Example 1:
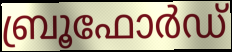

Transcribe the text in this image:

ബ്രൂഫോർഡ്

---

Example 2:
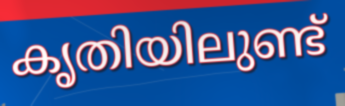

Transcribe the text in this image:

കൃതിയിലുണ്ട്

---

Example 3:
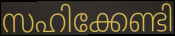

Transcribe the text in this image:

സഹിക്കേണ്ടി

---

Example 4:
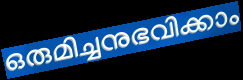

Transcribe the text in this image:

ഒരുമിച്ചനുഭവിക്കാം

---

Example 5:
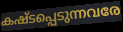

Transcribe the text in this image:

കഷ്ടപ്പെടുന്നവരേ